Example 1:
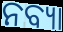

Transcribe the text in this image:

ନବ୍ୟା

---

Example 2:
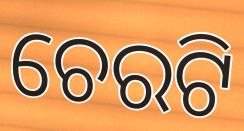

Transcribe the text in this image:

ଚେରଟି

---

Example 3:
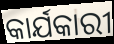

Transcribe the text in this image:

କାର୍ଯକାରୀ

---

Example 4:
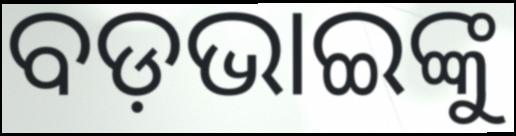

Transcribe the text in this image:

ବଡ଼ଭାଇଙ୍କୁ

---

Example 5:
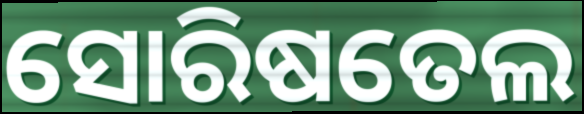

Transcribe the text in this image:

ସୋରିଷତେଲ